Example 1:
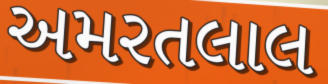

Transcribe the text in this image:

અમરતલાલ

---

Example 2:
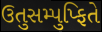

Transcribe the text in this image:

ઉતુસમ્પુપ્ફિતે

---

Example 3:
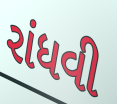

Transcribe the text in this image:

રાંધવી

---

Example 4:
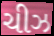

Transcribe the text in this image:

ચીઝ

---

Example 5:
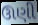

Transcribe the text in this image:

ઊણી